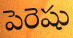
పెరెషు